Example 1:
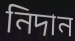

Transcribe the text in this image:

নিদান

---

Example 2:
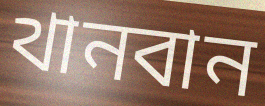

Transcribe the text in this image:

থানবান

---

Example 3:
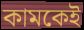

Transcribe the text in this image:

কামকেই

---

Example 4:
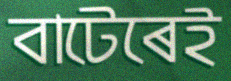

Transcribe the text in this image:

বাটেৰেই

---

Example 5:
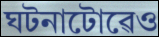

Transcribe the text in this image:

ঘটনাটোৱেও